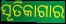
ସୂତିକାଗାର